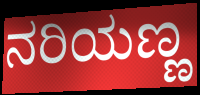
ನರಿಯಣ್ಣ